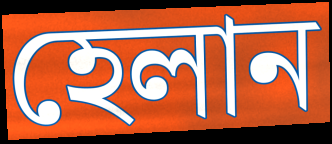
হেলান